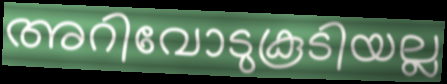
അറിവോടുകൂടിയല്ല